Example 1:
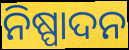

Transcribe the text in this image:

ନିଷ୍ପାଦନ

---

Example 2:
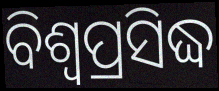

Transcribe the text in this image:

ବିଶ୍ଵପ୍ରସିଦ୍ଧ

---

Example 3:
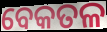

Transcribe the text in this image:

ବେକତଳ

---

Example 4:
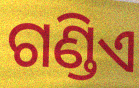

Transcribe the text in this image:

ଗଣ୍ଡିଏ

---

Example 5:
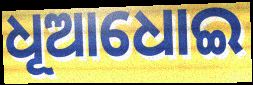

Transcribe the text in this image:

ଧୂଆଧୋଇ